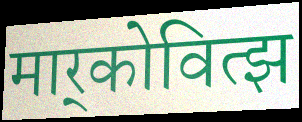
मार्कोवित्झ